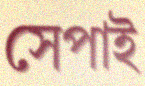
সেপাই